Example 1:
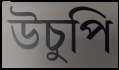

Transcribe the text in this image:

উচুপি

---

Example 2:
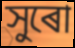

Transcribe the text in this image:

সুৰো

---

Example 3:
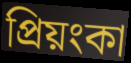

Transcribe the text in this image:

প্ৰিয়ংকা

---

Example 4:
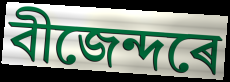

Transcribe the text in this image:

বীজেন্দৰে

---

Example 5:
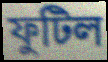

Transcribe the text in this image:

ফুটিল